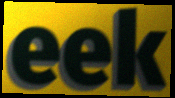
eek